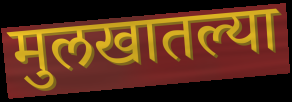
मुलखातल्या